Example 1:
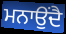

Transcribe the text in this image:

ਮਨਾਉਂਦੈ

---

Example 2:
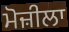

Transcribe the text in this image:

ਮੋਜ਼ੀਲਾ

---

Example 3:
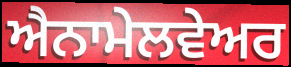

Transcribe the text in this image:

ਐਨਾਮੇਲਵੇਅਰ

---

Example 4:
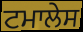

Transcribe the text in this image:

ਟਮਾਲੇਸ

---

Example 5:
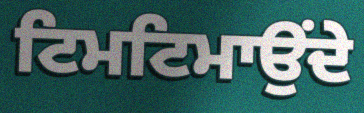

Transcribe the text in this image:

ਟਿਮਟਿਮਾਉਂਦੇ